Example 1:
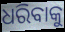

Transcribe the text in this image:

ଧରିବାକୁ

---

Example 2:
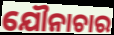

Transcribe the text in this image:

ଯୌନାଚାର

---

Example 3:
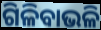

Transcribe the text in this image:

ଗିଳିବାଭଳି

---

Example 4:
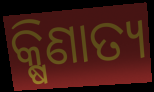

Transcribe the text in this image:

କ୍ଷିଣାତ୍ୟ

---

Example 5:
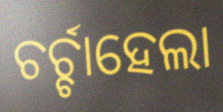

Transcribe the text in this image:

ଚର୍ଚ୍ଚାହେଲା